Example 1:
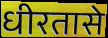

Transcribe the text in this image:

धीरतासे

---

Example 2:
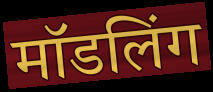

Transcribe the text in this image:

मॉडलिंग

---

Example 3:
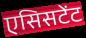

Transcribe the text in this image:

एसिसटेंट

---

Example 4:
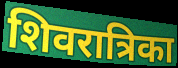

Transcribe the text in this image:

शिवरात्रिका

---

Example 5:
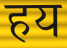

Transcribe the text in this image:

हय